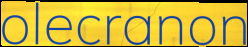
olecranon